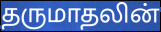
தருமாதலின்